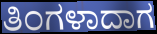
ತಿಂಗಳಾದಾಗ